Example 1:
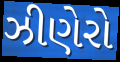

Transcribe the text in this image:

ઝીણેરો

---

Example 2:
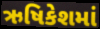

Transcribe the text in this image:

ઋષિકેશમાં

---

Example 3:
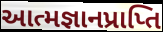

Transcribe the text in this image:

આત્મજ્ઞાનપ્રાપ્તિ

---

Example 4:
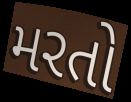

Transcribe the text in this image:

મરતો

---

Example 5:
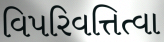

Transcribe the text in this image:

વિપરિવત્તિત્વા